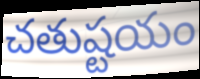
చతుష్టయం